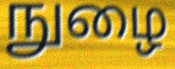
நுழை